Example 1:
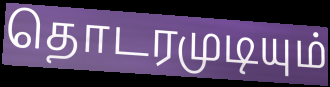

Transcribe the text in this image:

தொடரமுடியும்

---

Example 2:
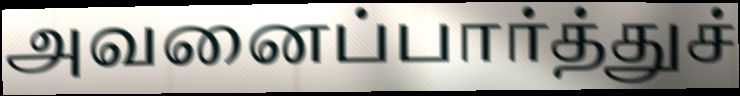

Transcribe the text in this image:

அவனைப்பார்த்துச்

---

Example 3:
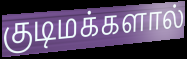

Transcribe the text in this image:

குடிமக்களால்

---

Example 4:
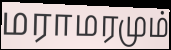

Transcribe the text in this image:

மராமரமும்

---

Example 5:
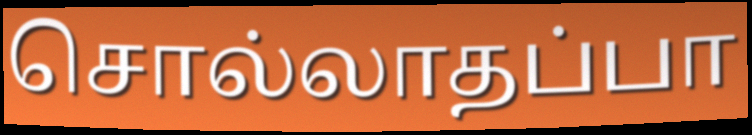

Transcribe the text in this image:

சொல்லாதப்பா